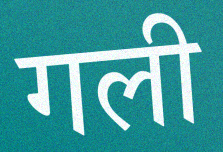
गली